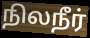
நிலநீர்